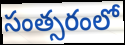
సంత్సరంలో